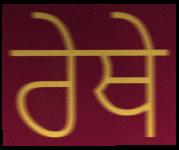
ਰੇਥੇ